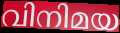
വിനിമയ